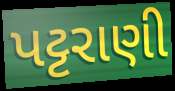
પટ્ટરાણી